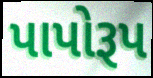
પાપોરૂપ